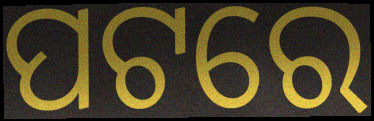
ପଟରେ